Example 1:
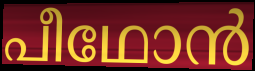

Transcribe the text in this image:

പീഥോൻ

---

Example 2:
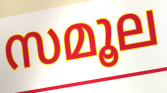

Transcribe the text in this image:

സമൂല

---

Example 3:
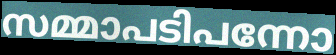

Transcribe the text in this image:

സമ്മാപടിപന്നോ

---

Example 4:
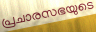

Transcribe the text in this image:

പ്രചാരസഭയുടെ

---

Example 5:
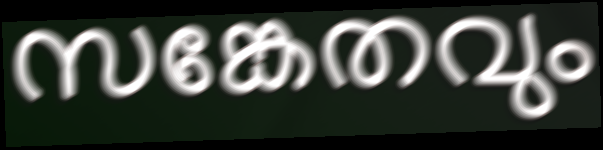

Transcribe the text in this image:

സങ്കേതവും